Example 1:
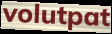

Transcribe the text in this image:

volutpat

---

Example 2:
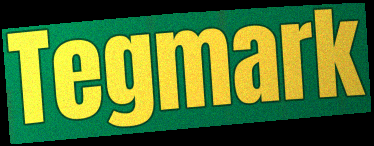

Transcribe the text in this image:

Tegmark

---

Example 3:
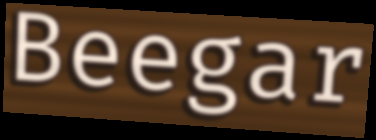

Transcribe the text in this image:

Beegar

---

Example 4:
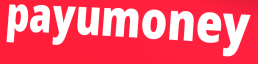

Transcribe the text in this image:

payumoney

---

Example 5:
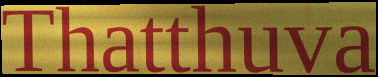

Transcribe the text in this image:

Thatthuva